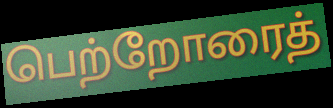
பெற்றோரைத்